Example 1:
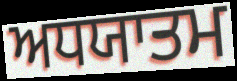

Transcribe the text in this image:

ਅਧਯਾਤਮ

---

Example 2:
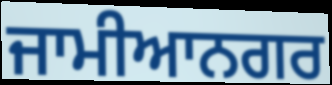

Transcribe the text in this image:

ਜਾਮੀਆਨਗਰ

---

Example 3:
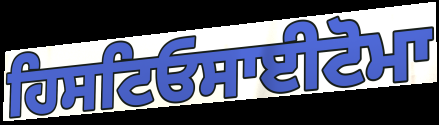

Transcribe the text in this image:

ਹਿਸਟਿਓਸਾਈਟੋਮਾ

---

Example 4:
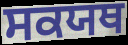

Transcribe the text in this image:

ਸਕਯਥ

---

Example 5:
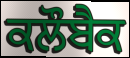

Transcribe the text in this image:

ਕਲੌਬੈਕ